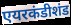
एयरकंडीशंड